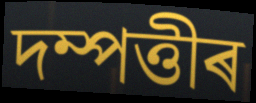
দম্পত্তীৰ